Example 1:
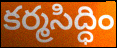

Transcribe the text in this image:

కర్మసిద్ధిం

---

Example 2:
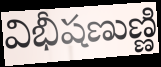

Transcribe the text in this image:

విభీషణుణ్ణి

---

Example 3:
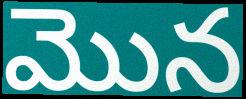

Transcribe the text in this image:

మొన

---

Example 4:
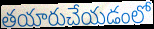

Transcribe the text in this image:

తయారుచేయడంలో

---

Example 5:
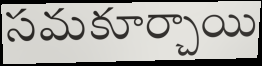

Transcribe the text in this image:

సమకూర్చాయి